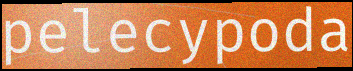
pelecypoda